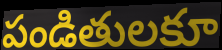
పండితులకూ